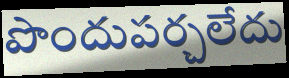
పొందుపర్చలేదు